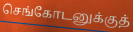
செங்கோடனுக்குத்